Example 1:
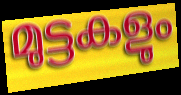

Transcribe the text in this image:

മുട്ടകളും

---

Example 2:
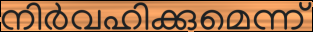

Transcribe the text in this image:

നിർവഹിക്കുമെന്ന്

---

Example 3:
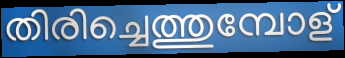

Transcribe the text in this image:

തിരിച്ചെത്തുമ്പോള്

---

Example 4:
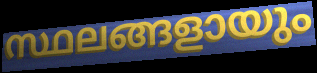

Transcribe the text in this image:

സ്ഥലങ്ങളായും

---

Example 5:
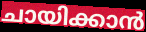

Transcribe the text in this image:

ചായിക്കാൻ